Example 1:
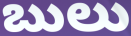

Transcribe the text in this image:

బులు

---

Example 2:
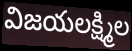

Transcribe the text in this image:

విజయలక్ష్మిల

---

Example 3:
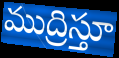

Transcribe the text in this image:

ముద్రిస్తూ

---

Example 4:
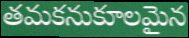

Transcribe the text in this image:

తమకనుకూలమైన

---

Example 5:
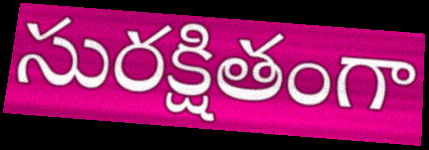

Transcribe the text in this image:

సురక్షితంగా